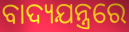
ବାଦ୍ୟଯନ୍ତ୍ରରେ